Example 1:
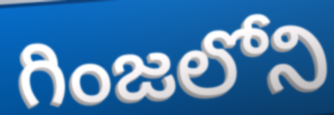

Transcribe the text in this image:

గింజలోని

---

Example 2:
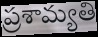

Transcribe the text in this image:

ప్రశామ్యతి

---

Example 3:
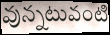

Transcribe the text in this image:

వున్నటువంటి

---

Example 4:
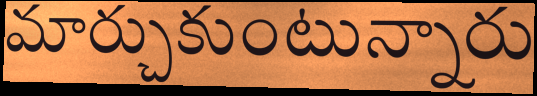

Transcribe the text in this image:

మార్చుకుంటున్నారు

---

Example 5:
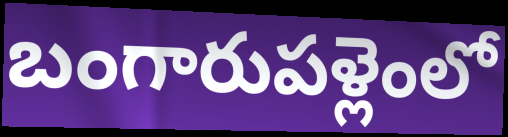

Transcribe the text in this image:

బంగారుపళ్లెంలో